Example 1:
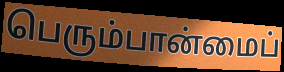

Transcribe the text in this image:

பெரும்பான்மைப்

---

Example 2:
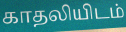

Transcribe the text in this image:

காதலியிடம்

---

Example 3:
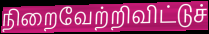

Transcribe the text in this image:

நிறைவேற்றிவிட்டுச்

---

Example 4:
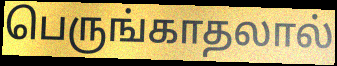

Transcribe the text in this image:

பெருங்காதலால்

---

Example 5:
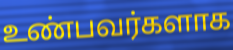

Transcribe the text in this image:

உண்பவர்களாக